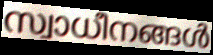
സ്വാധീനങ്ങൾ